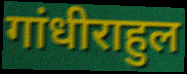
गांधीराहुल